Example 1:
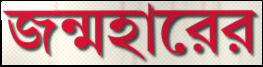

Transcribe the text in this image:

জন্মহারের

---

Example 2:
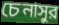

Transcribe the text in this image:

চেনাসুর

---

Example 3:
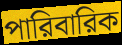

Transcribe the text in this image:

পারিবারিক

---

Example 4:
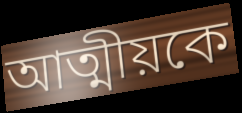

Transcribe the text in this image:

আত্মীয়কে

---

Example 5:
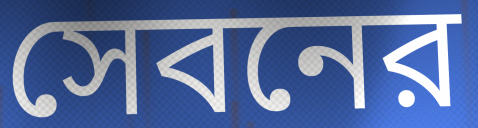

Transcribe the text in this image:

সেবনের